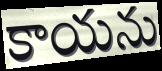
కాయను